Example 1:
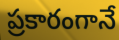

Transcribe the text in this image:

ప్రకారంగానే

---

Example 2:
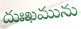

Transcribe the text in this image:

దుఃఖమును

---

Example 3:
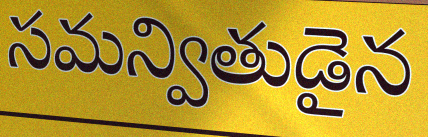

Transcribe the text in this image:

సమన్వితుడైన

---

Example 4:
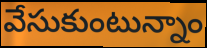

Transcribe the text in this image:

వేసుకుంటున్నాం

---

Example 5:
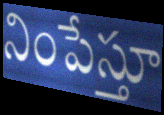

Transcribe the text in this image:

నింపేస్తూ